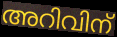
അറിവിന്